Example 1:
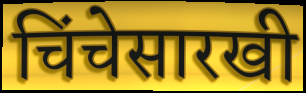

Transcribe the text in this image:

चिंचेसारखी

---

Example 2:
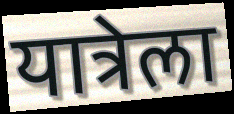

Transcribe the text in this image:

यात्रेला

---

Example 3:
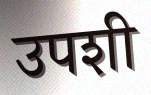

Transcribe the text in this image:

उपशी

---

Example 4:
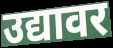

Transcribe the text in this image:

उद्यावर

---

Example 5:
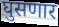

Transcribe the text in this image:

घुसणार